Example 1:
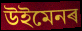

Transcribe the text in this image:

উইমেনৰ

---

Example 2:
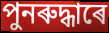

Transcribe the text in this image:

পুনৰুদ্ধাৰে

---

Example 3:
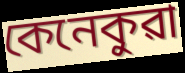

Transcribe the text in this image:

কেনেকুৱা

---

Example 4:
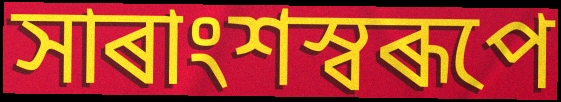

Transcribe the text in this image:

সাৰাংশস্বৰূপে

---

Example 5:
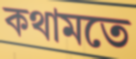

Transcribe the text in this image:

কথামতে